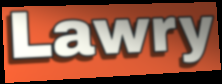
Lawry